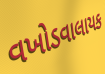
વખોડવાલાયક